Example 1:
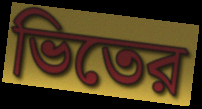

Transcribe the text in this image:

ভিতের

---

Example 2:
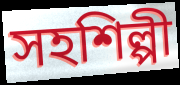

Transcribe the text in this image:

সহশিল্পী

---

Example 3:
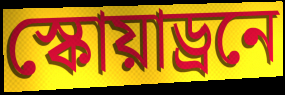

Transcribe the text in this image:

স্কোয়াড্রনে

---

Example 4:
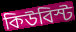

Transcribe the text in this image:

কিউবিস্ট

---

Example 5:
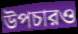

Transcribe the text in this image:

উপচারও